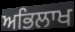
ਅਭਿਲਾਖ